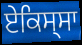
ਏਕਿਸ੍ਸਾ